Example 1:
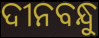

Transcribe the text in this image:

ଦୀନବନ୍ଧୁ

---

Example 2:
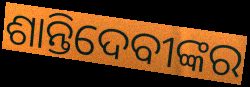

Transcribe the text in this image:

ଶାନ୍ତିଦେବୀଙ୍କର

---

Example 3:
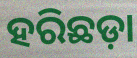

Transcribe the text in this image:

ହରିଛଡ଼ା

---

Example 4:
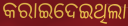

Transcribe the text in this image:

କରାଇଦେଇଥିଲା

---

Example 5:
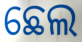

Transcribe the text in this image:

ଛେଲ